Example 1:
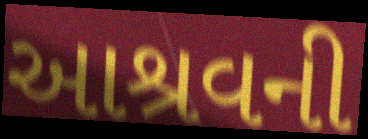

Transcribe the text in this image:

આશ્રવની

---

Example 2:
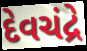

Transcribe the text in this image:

દેવચંદ્રે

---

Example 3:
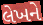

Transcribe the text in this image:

લેખને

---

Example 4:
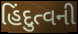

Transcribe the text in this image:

હિંદુત્વની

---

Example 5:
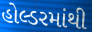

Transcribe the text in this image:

હોલ્ડરમાંથી